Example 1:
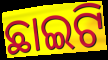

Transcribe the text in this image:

ଛାଇଟି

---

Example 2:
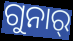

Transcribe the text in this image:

ଗୁନାର୍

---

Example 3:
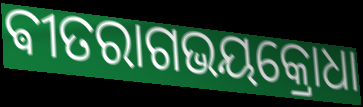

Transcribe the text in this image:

ଵୀତରାଗଭୟକ୍ରୋଧା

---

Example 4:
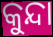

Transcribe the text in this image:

କୁନ୍ଦା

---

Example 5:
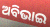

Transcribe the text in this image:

ଅବିଭାଇ